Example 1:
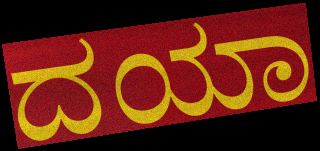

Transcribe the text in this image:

ದಯಾ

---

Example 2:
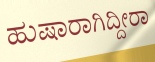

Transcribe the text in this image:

ಹುಷಾರಾಗಿದ್ದೀರಾ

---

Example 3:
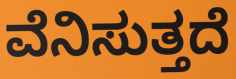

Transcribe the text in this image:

ವೆನಿಸುತ್ತದೆ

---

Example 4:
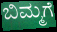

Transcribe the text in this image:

ಬಿಮ್ಮಗೆ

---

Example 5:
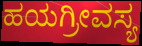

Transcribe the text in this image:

ಹಯಗ್ರೀವಸ್ಯ